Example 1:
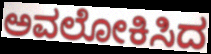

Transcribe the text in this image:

ಅವಲೋಕಿಸಿದ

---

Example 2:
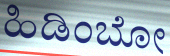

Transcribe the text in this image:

ಹಿಡಿಂಬೋ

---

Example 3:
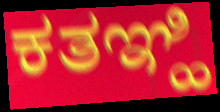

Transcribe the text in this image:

ಕತಞ್ಹಿ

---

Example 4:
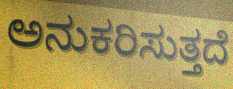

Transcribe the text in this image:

ಅನುಕರಿಸುತ್ತದೆ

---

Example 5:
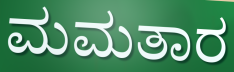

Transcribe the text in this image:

ಮಮತಾರ